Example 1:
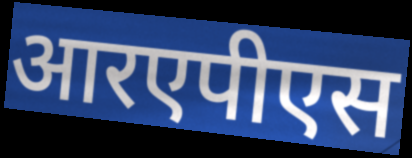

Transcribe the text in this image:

आरएपीएस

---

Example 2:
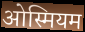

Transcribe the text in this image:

ओस्मियम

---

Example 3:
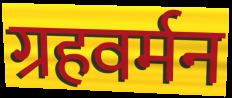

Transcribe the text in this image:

ग्रहवर्मन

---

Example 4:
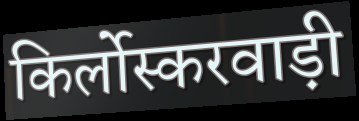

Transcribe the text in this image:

किर्लोस्करवाड़ी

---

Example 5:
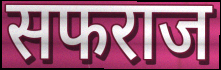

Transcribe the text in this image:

सफराज